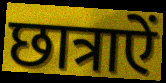
छात्राऐं